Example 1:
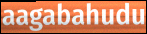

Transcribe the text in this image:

aagabahudu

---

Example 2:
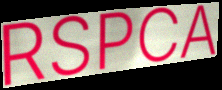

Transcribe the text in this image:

RSPCA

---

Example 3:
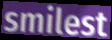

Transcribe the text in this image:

smilest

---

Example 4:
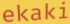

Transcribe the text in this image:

ekaki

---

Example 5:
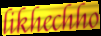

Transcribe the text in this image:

likhechho